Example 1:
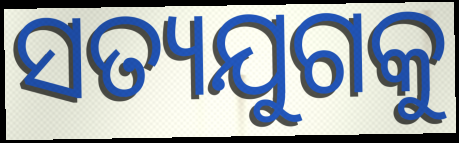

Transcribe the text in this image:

ସତ୍ୟଯୁଗକୁ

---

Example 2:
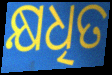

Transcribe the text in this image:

କ୍ଷଧିତ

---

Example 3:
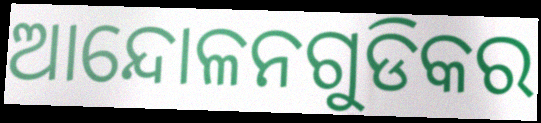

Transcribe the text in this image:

ଆନ୍ଦୋଳନଗୁଡିକର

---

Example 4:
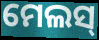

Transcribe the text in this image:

ମେଲସ୍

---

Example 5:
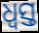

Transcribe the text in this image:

ଧ୍ବସ୍ତ